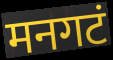
मनगटं